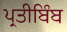
ਪ੍ਰਤੀਬਿੰਬ